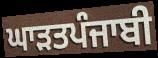
ਘਾੜਤਪੰਜਾਬੀ